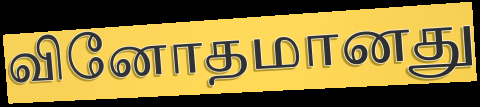
வினோதமானது